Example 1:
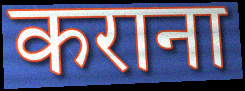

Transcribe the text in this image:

कराना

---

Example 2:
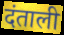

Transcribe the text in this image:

दंताली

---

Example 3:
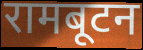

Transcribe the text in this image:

रामबूटन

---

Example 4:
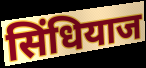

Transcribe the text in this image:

सिंधियाज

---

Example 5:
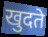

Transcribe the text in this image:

खुदते